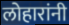
लोहारांनी